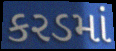
કરડમાં